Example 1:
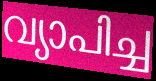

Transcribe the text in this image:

വ്യാപിച്ച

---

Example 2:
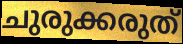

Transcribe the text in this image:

ചുരുക്കരുത്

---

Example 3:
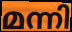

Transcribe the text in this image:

മന്നി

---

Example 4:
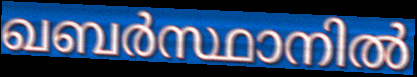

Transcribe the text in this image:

ഖബർസ്ഥാനിൽ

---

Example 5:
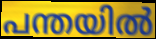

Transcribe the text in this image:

പന്തയിൽ